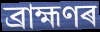
ব্ৰাহ্মণৰ